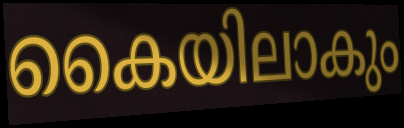
കൈയിലാകും